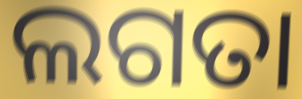
ଲଗତା